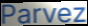
Parvez